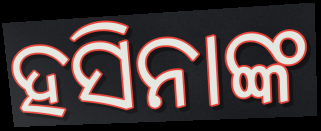
ହସିନାଙ୍କ